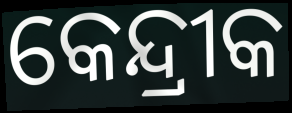
କେନ୍ଦ୍ରୀକ